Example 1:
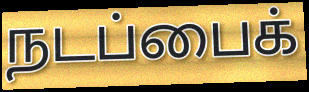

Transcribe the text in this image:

நடப்பைக்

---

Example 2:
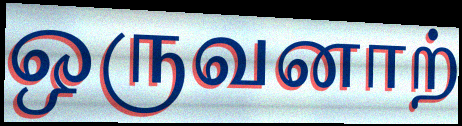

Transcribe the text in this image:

ஒருவனாற்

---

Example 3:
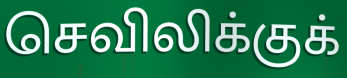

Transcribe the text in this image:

செவிலிக்குக்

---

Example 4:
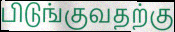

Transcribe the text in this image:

பிடுங்குவதற்கு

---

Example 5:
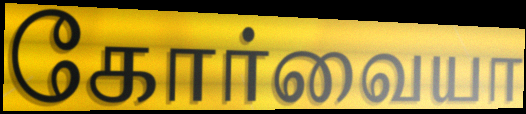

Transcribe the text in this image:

கோர்வையா